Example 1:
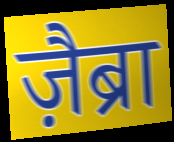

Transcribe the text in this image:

ज़ैब्रा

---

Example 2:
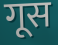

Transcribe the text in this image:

गूस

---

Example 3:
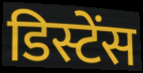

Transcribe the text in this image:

डिस्टेंस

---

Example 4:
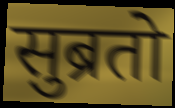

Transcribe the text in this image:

सुब्रतो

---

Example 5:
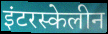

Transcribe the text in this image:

इंटरस्केलीन